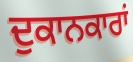
ਦੁਕਾਨਕਾਰਾਂ